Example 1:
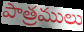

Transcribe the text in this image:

పాత్రములు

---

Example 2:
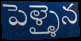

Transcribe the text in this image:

పెళ్ళైన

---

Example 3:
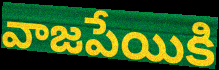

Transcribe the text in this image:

వాజపేయికి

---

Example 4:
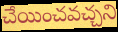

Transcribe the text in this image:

చేయించవచ్చని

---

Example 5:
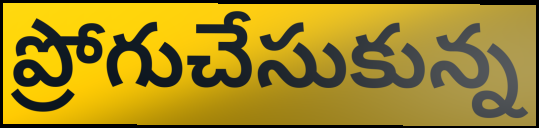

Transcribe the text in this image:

ప్రోగుచేసుకున్న